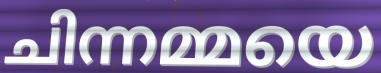
ചിന്നമ്മയെ